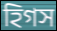
হিগস